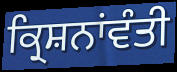
ਕ੍ਰਿਸ਼ਨਾਂਵੰਤੀ